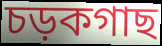
চড়কগাছ